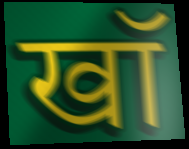
खॉ